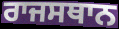
ਰਾਜਸਥਾਨ